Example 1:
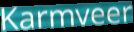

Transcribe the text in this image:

Karmveer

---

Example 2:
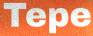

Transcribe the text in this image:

Tepe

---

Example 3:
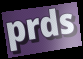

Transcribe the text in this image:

prds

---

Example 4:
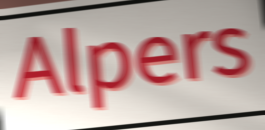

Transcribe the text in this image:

Alpers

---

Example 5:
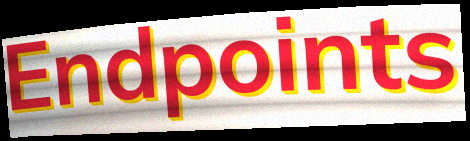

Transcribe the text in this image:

Endpoints